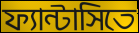
ফ্যান্টাসিতে